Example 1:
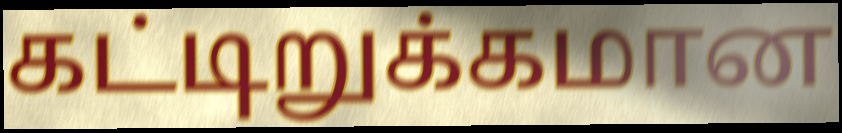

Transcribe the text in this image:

கட்டிறுக்கமான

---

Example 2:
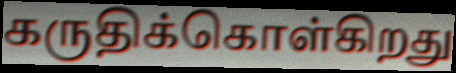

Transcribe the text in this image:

கருதிக்கொள்கிறது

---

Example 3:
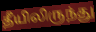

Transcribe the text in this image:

தீயிலிருந்து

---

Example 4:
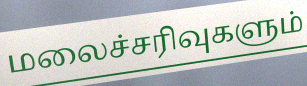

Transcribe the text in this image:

மலைச்சரிவுகளும்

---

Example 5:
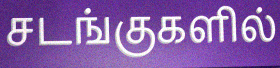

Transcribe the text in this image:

சடங்குகளில்